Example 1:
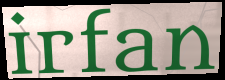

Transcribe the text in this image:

irfan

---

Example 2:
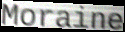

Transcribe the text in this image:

Moraine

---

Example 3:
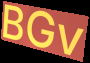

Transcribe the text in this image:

BGv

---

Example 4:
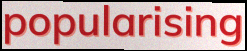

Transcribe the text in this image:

popularising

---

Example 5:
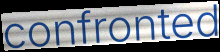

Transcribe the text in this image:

confronted